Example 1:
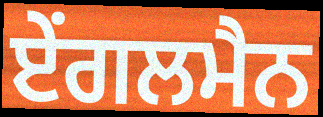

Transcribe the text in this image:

ਏਂਗਲਮੈਨ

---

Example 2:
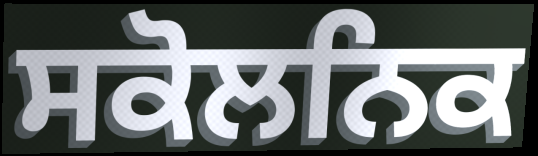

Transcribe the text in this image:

ਸਕੋਲਨਿਕ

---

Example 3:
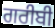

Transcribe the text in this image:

ਗਰੀਬੀ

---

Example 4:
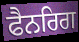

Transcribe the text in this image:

ਫੈਨਰਿਗ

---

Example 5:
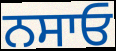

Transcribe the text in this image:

ਨਸਾਓ